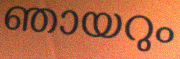
ഞായറും